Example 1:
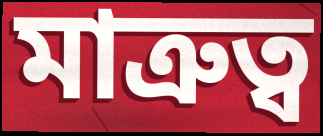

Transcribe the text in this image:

মাত্রুত্ব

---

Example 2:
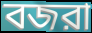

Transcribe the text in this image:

বজরা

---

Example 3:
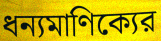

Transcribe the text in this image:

ধন্যমাণিক্যের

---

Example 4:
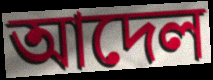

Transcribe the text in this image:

আদেল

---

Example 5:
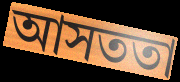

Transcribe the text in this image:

আসততা